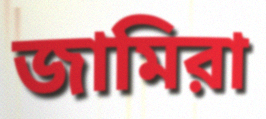
জামিরা